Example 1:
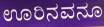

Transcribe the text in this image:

ಊರಿನವನೂ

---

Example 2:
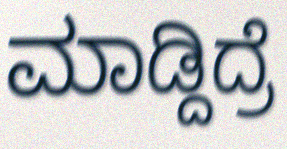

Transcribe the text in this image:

ಮಾಡ್ದಿದ್ರೆ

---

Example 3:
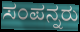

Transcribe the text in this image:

ಸಂಪನ್ನರು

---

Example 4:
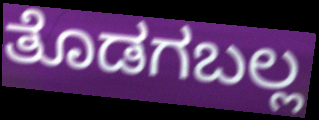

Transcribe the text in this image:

ತೊಡಗಬಲ್ಲ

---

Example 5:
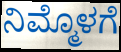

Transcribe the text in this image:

ನಿಮ್ಮೊಳಗೆ